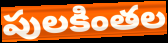
పులకింతల